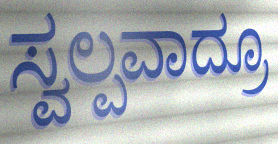
ಸ್ವಲ್ಪವಾದ್ರೂ